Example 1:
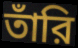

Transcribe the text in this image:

তাঁরি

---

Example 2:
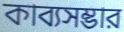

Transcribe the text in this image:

কাব্যসম্ভার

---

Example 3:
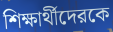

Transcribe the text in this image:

শিক্ষার্থীদেরকে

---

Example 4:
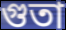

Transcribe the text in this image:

গুতা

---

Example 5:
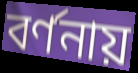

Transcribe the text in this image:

বর্ণনায়